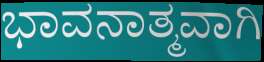
ಭಾವನಾತ್ಮವಾಗಿ